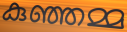
കുഞ്ഞമ്മ